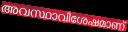
അവസ്ഥാവിശേഷമാണ്